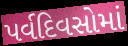
પર્વદિવસોમાં